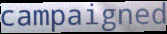
campaigned